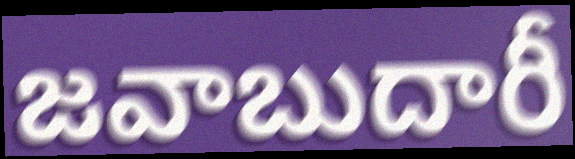
జవాబుదారీ